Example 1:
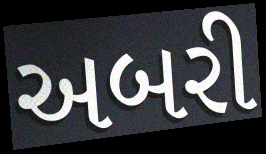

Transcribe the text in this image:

અબરી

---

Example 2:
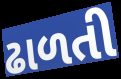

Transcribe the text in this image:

ઢાળતી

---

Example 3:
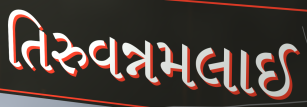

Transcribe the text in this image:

તિરુવન્નમલાઈ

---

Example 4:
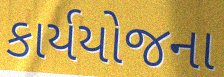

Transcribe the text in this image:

કાર્યયોજના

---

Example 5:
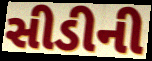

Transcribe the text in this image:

સીડીની